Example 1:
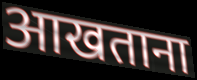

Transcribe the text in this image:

आखताना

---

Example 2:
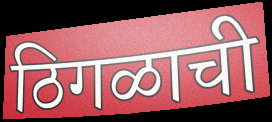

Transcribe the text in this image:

ठिगळाची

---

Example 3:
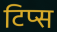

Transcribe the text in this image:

टिप्स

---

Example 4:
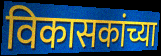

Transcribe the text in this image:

विकासकांच्या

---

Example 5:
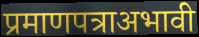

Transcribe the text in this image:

प्रमाणपत्राअभावी